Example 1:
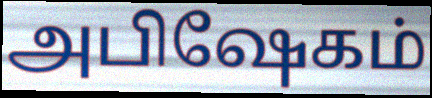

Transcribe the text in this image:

அபிஷேகம்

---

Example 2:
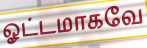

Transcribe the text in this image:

ஓட்டமாகவே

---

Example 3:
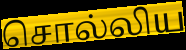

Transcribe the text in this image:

சொல்லிய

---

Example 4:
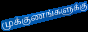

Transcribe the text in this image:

முக்குணங்களுக்கு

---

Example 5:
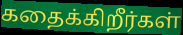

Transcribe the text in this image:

கதைக்கிறீர்கள்